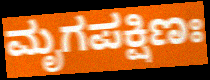
ಮೃಗಪಕ್ಷಿಣಃ